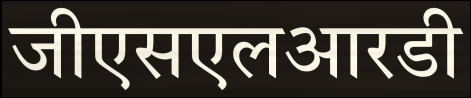
जीएसएलआरडी